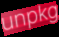
unpkg